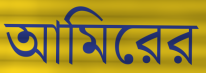
আমিরের